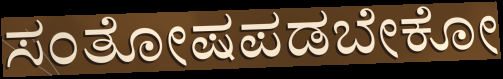
ಸಂತೋಷಪಡಬೇಕೋ